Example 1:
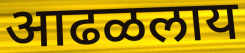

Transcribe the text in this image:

आढळलाय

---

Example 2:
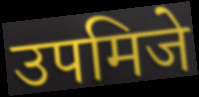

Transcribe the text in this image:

उपमिजे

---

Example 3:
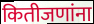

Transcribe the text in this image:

कितीजणांना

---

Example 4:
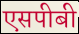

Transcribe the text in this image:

एसपीबी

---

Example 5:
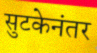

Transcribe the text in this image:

सुटकेनंतर